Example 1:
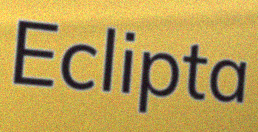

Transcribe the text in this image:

Eclipta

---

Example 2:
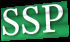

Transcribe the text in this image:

SSP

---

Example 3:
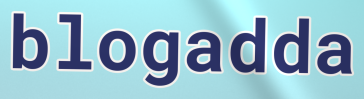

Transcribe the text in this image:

blogadda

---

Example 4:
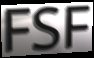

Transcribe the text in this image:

FSF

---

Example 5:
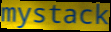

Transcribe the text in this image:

mystack